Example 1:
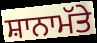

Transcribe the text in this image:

ਸ਼ਾਨਾਮੱਤੇ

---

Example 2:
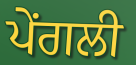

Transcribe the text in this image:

ਪੇਂਗਲੀ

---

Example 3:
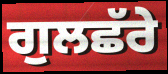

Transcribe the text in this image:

ਗੁਲਛੱਰੇ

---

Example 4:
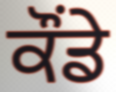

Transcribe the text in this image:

ਕੌਂਡੇ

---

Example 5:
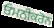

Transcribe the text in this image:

ਓਮਨੀਕਰੋਨ